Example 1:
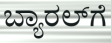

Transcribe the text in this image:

ಬ್ಯಾರಲ್‌ಗೆ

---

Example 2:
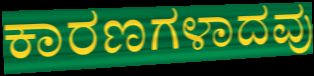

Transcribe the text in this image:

ಕಾರಣಗಳಾದವು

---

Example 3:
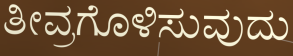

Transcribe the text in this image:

ತೀವ್ರಗೊಳಿಸುವುದು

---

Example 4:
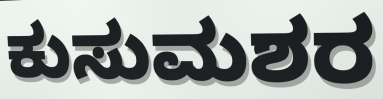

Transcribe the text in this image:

ಕುಸುಮಶರ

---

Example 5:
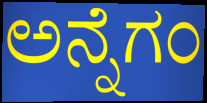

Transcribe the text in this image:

ಅನ್ನೆಗಂ